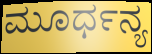
ಮೂರ್ಧನ್ಯ